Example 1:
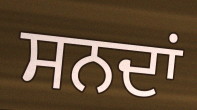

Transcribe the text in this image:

ਸਨਦਾਂ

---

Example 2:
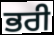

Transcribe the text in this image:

ਭਰੀ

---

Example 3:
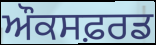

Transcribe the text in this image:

ਔਕਸਫ਼ਰਡ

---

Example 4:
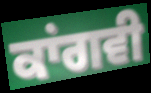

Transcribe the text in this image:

ਕਾਂਗਵੀ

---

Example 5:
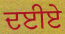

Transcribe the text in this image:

ਦਈਏ